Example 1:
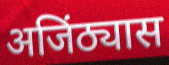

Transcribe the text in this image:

अजिंठ्यास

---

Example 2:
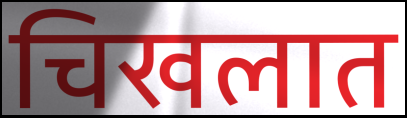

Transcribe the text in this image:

चिखलात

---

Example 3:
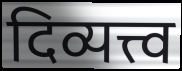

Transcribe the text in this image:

दिव्यत्त्व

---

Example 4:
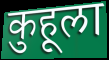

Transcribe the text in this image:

कुहूला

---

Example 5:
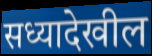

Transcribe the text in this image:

सध्यादेखील